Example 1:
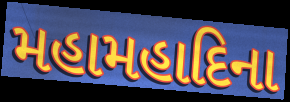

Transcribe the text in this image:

મહામહાદિના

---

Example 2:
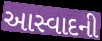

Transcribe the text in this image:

આસ્વાદની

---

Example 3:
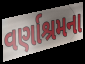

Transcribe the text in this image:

વર્ણાશ્રમના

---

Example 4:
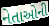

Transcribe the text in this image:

નેતાઓની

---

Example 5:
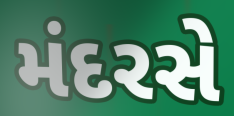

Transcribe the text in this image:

મંદરસે